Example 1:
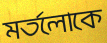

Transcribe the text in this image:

মর্তলোকে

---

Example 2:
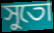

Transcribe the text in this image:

সুতো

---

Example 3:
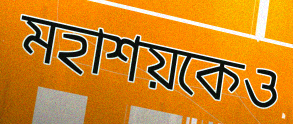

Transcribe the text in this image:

মহাশয়কেও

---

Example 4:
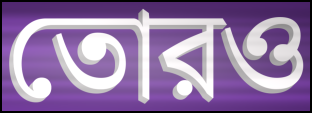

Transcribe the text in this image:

তোরও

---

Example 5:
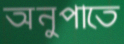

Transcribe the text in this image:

অনুপাতে